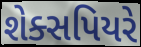
શેક્સપિયરે